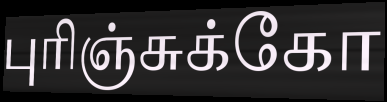
புரிஞ்சுக்கோ